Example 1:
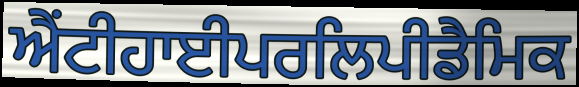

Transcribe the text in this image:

ਐਂਟੀਹਾਈਪਰਲਿਪੀਡੈਮਿਕ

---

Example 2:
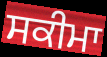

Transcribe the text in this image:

ਸਕੀਮਾ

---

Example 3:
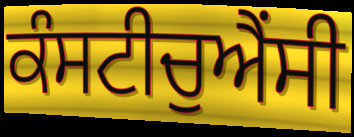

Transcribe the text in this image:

ਕੰਸਟੀਚੁਐਂਸੀ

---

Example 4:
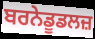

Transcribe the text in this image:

ਬਰਨੇਡੂਡਲਜ਼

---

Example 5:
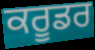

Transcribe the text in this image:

ਕਰੂਡਰ